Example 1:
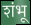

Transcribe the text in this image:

शंभू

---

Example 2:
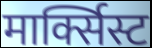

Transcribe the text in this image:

मार्क्सिस्ट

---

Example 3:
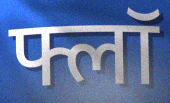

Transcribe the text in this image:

फ्लॉ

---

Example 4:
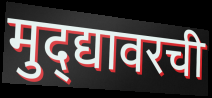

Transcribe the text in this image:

मुद्द्यावरची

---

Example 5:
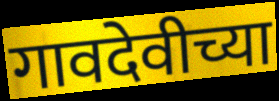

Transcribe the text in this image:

गावदेवीच्या